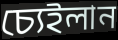
চ্যেইলান